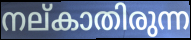
നല്കാതിരുന്ന